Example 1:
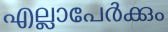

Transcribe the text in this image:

എല്ലാപേർക്കും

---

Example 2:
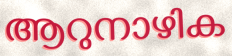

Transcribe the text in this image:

ആറുനാഴിക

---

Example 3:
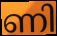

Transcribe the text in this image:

ണി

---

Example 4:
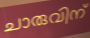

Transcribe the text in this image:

ചാരുവിന്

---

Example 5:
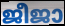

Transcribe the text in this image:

ജീജാ